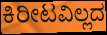
ಕಿರೀಟವಿಲ್ಲದ